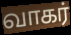
வாகர்